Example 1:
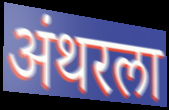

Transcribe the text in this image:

अंथरला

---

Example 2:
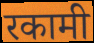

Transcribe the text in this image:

रकामी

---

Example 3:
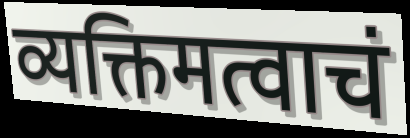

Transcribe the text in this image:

व्यक्तिमत्वाचं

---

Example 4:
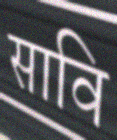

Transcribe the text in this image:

सावि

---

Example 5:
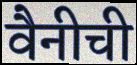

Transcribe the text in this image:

वैनीची